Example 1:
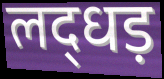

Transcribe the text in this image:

लद्धड़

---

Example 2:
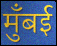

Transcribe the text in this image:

मुँबई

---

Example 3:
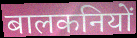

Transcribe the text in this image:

बालकनियों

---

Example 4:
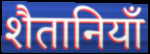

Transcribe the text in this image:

शैतानियाँ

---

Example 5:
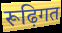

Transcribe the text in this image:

रूढ़िगत